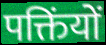
पक्तिंयों